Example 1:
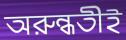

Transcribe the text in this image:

অরুন্ধতীই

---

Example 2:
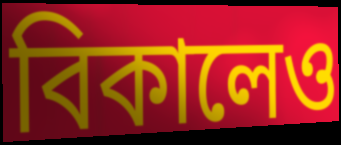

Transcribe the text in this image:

বিকালেও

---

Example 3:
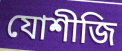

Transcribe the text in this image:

যোশীজি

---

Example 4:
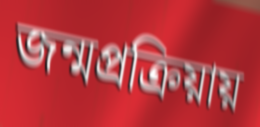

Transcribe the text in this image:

জন্মপ্রক্রিয়ায়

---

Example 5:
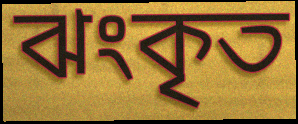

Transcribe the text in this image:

ঝংকৃত